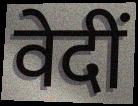
वेदीं